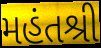
મહંતશ્રી